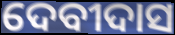
ଦେବୀଦାସ